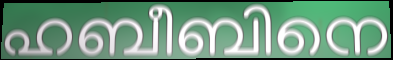
ഹബീബിനെ